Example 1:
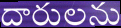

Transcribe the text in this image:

దారులను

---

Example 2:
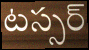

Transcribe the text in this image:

టస్సర్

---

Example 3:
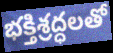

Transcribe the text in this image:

భక్తిశ్రద్ధలతో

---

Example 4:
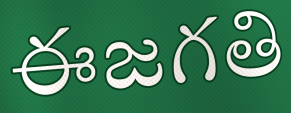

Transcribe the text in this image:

ఈజగతి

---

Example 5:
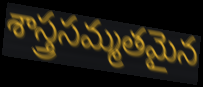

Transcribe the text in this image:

శాస్త్రసమ్మతమైన